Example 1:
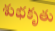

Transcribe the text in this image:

శుభకృతు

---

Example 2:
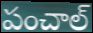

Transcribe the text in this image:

పంచాల్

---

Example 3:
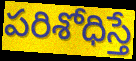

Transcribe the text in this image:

పరిశోధిస్తే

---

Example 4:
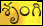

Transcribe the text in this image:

శృంగి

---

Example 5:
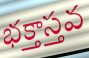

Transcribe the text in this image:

భక్తాస్తవ